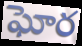
ఘోర